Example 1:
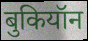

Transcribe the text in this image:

बुकियॉन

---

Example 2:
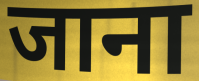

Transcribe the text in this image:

जाना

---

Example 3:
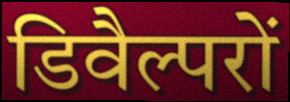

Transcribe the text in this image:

डिवैल्परों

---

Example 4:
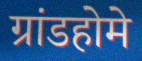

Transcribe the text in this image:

ग्रांडहोमे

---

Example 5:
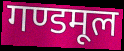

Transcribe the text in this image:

गण्डमूल